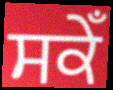
ਸਕੇਁ